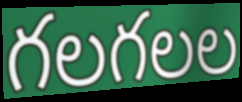
గలగలల